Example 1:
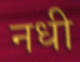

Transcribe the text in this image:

नधी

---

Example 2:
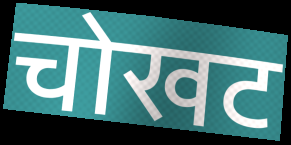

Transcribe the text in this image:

चोखट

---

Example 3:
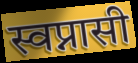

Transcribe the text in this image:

स्वप्नासी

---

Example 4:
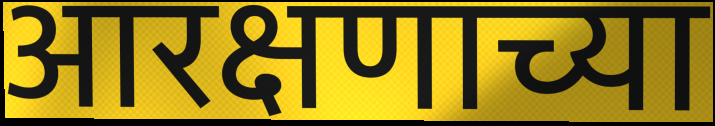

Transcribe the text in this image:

आरक्षणाच्या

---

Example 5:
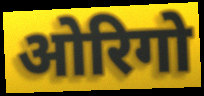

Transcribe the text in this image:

ओरिगो